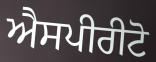
ਐਸਪੀਰੀਟੋ